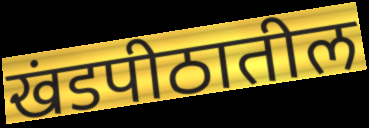
खंडपीठातील